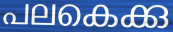
പലകെക്കു